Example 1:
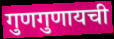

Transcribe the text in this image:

गुणगुणायची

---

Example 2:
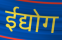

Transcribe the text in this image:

ईद्योग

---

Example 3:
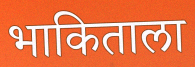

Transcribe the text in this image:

भाकिताला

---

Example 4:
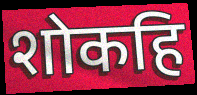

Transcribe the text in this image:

शोकहि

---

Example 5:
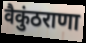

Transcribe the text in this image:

वैकुंठराणा